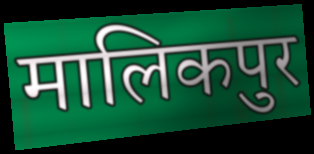
मालिकपुर